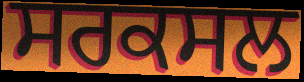
ਸਰਕਸਲ